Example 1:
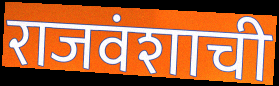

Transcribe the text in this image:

राजवंशाची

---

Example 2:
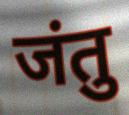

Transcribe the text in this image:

जंतु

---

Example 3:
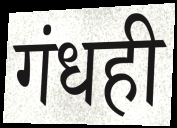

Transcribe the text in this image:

गंधही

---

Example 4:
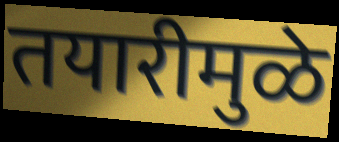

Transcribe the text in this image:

तयारीमुळे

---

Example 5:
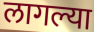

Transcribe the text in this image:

लागल्‍या